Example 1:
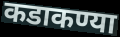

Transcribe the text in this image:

कडाकण्या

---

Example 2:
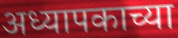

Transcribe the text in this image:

अध्यापकाच्या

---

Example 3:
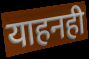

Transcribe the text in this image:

याहनही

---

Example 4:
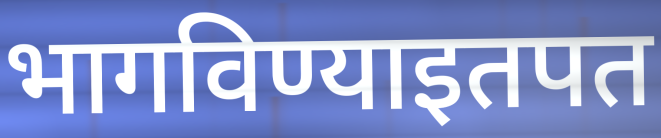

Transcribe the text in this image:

भागविण्याइतपत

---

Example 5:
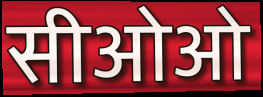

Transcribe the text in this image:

सीओओ